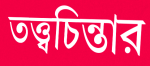
তত্ত্বচিন্তার